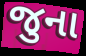
જુના